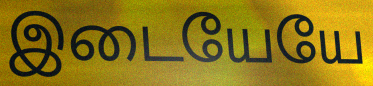
இடையேயே